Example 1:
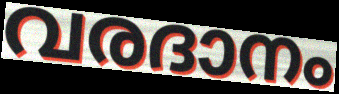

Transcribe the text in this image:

വരദാനം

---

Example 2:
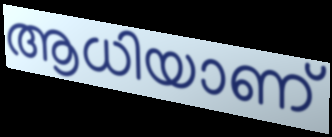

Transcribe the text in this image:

ആധിയാണ്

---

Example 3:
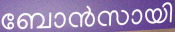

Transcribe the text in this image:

ബോൻസായി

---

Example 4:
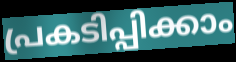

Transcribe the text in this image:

പ്രകടിപ്പിക്കാം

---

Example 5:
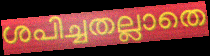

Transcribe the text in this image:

ശപിച്ചതല്ലാതെ